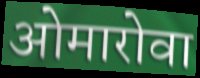
ओमारोवा